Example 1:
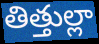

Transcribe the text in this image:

తిత్తుల్లా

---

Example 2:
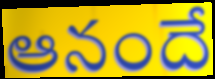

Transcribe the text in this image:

ఆనందే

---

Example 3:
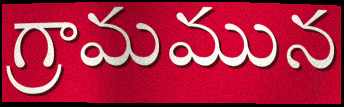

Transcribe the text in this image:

గ్రామమున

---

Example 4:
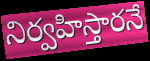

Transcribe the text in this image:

నిర్వహిస్తారనే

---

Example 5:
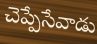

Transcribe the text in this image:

చెప్పేసేవాడు